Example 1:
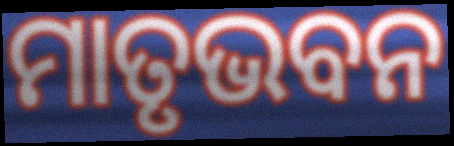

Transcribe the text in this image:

ମାତୃଭବନ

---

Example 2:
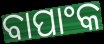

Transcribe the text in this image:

ବାପାଂକ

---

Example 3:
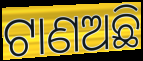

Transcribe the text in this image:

ଟାଣଅଛି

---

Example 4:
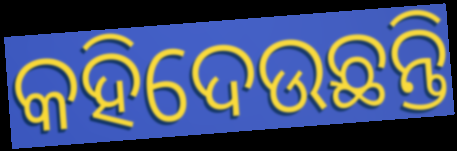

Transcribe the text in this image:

କହିଦେଉଛନ୍ତି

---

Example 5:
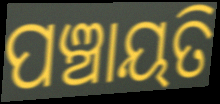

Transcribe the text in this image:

ପଞ୍ଚାୟତି